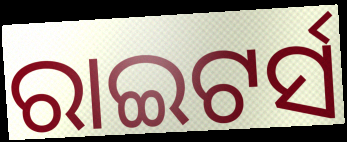
ରାଇଟର୍ସ